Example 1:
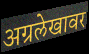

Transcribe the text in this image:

अग्रलेखावर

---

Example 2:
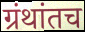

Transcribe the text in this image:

ग्रंथांतच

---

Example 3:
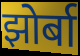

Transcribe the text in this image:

झोर्बा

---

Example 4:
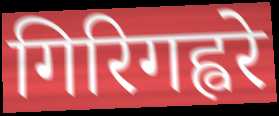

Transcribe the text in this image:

गिरिगह्वरे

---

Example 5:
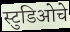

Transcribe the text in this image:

स्टुडिओचे